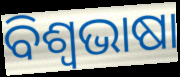
ବିଶ୍ୱଭାଷା